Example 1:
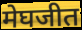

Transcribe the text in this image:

मेघजीत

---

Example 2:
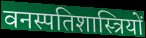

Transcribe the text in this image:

वनस्पतिशास्त्रियों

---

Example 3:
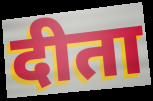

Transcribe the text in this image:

दीता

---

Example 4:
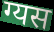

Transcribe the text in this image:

ग्यस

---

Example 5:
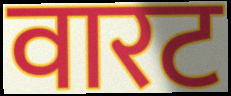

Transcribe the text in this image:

वारट